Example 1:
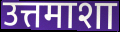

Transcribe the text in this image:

उत्तमाशा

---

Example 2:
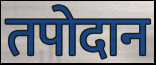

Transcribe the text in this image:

तपोदान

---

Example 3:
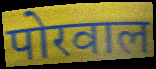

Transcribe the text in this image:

पोरवाल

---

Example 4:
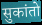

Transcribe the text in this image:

सुकांतो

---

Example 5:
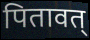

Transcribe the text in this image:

पितावत्